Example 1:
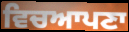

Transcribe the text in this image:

ਵਿਚਆਪਣਾ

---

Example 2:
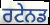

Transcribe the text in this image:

ਰਟੇਨਡ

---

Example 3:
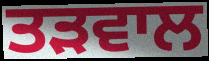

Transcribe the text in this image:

ਤੜਵਾਲ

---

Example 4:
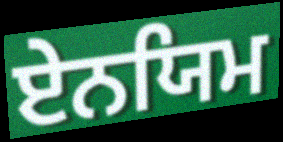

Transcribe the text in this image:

ਏਨਯਿਮ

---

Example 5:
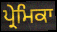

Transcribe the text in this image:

ਪ੍ਰੇਮਿਕਾ